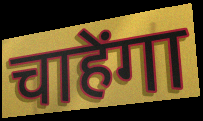
चाहेंगा